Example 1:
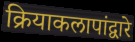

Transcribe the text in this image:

क्रियाकलापांद्वारे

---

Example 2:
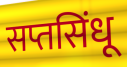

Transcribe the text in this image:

सप्तसिंधू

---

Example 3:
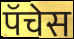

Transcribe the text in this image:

पॅचेस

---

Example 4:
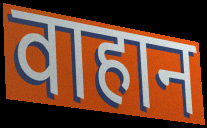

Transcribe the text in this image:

वाहान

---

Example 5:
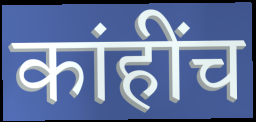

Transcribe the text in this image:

कांहींच